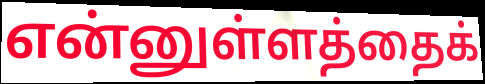
என்னுள்ளத்தைக்